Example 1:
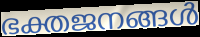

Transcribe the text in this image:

ഭക്തജനങ്ങൾ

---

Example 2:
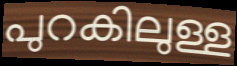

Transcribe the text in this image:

പുറകിലുള്ള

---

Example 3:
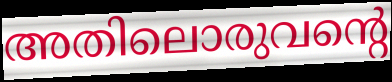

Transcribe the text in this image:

അതിലൊരുവന്റെ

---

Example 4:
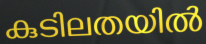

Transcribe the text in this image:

കുടിലതയിൽ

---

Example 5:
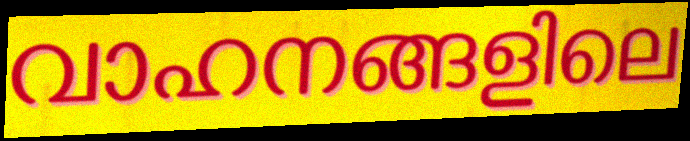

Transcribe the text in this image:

വാഹനങ്ങളിലെ